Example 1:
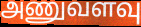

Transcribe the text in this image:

அணுவளவு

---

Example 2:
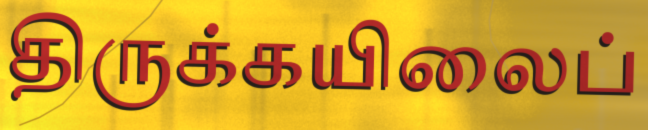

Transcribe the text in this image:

திருக்கயிலைப்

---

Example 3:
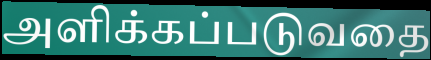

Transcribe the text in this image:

அளிக்கப்படுவதை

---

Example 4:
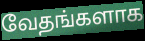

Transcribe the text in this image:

வேதங்களாக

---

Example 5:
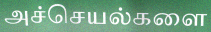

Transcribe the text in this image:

அச்செயல்களை